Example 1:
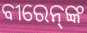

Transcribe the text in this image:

ବୀରେନ୍‍ଙ୍କ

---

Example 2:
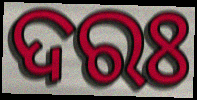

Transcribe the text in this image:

ଦରଃ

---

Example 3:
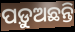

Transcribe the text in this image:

ପଡ଼ୁଅଛନ୍ତି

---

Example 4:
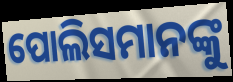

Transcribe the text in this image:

ପୋଲିସମାନଙ୍କୁ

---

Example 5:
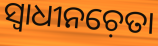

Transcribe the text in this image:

ସ୍ୱାଧୀନଚ଼େତା